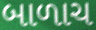
બાળાચ